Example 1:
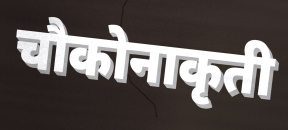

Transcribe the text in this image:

चौकोनाकृती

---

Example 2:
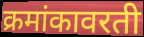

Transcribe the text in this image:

क्रमांकावरती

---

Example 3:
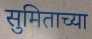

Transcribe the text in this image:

सुमिताच्या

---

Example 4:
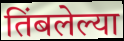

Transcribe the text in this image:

तिंबलेल्या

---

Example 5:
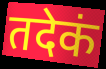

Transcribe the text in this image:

तदेकं